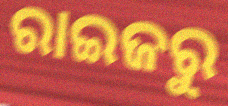
ରାଇଜରୁ